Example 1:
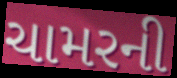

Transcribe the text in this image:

ચામરની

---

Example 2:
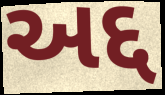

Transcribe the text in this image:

અદ્દ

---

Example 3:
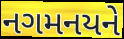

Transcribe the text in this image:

નગમનયને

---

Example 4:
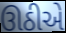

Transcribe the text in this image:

ઊઠીએ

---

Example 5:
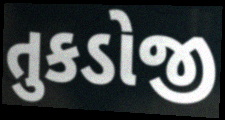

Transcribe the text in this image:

તુકડોજી